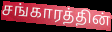
சங்காரத்தின்